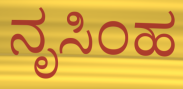
ನೃಸಿಂಹ